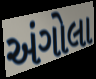
અંગોલા